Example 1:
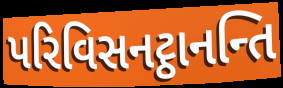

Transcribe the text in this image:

પરિવિસનટ્ઠાનન્તિ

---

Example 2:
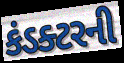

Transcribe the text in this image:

કંડક્ટરની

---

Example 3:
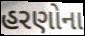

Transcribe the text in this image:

હરણોના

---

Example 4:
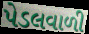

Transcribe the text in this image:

પેડલવાળી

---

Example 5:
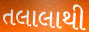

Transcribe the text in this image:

તલાલાથી